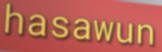
hasawun